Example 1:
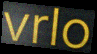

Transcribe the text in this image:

vrlo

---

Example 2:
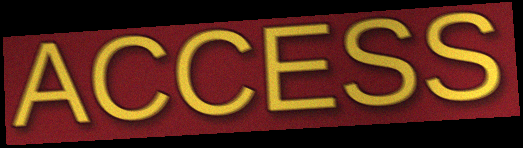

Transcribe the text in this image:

ACCESS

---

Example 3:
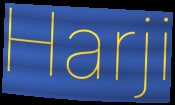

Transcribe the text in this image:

Harji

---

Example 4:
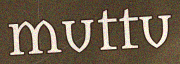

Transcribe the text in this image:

muttu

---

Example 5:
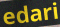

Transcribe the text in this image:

edari